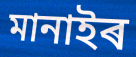
মানাইৰ